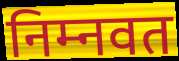
निम्नवत